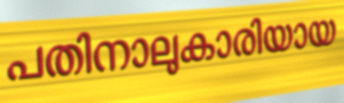
പതിനാലുകാരിയായ